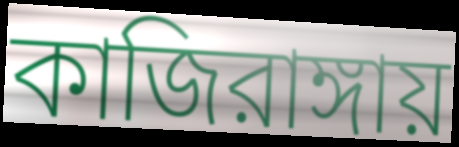
কাজিরাঙ্গায়